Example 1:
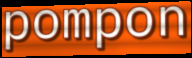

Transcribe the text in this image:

pompon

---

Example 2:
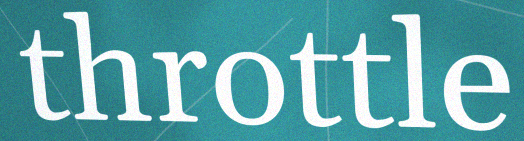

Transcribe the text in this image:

throttle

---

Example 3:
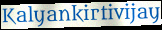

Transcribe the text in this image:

Kalyankirtivijay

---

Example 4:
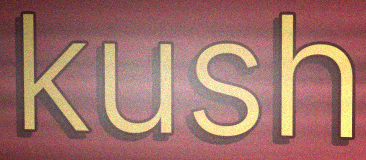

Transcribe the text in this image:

kush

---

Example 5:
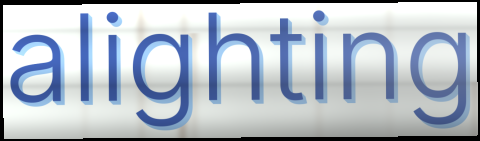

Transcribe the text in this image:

alighting